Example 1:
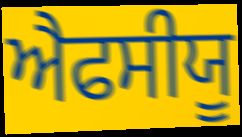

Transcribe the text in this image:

ਐਫਸੀਯੂ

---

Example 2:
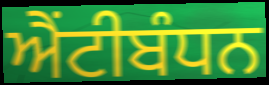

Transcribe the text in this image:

ਐਂਟੀਬੰਧਨ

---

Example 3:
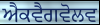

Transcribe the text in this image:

ਐਕਵੈਗਵੋਲਵ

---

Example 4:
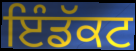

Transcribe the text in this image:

ਇੰਡੱਕਟ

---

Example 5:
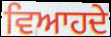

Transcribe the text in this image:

ਵਿਆਹਦੇ